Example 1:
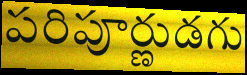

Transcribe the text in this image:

పరిపూర్ణుడగు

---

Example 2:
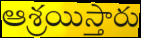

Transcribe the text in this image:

ఆశ్రయిస్తారు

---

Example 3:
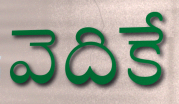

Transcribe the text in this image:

వెదికే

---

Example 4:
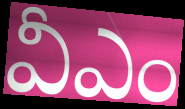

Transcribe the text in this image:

వీఎం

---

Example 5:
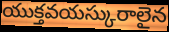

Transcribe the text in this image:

యుక్తవయస్కురాలైన